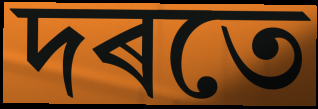
দৰতে